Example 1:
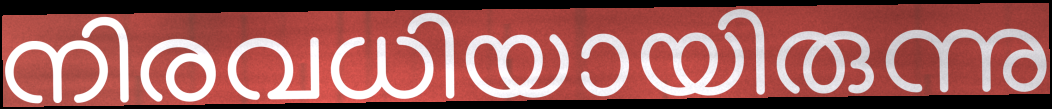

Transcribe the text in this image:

നിരവധിയായിരുന്നു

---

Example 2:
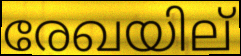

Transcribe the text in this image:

രേഖയില്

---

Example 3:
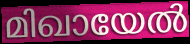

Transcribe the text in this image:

മിഖായേൽ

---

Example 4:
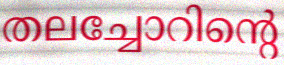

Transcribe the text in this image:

തലച്ചോറിന്റെ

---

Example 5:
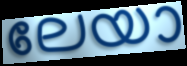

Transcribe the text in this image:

ലേയാ